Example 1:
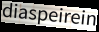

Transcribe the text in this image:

diaspeirein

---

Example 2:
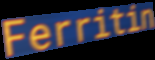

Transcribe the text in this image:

Ferritin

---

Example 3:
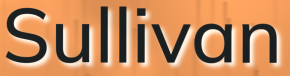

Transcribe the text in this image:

Sullivan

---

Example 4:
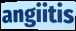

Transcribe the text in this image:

angiitis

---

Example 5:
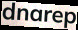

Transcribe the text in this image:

dnarep